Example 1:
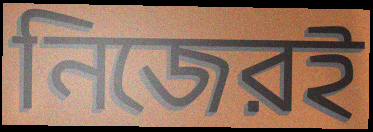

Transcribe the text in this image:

নিজেরই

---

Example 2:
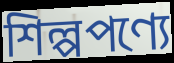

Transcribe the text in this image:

শিল্পপণ্যে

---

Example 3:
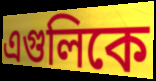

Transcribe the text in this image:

এগুলিকে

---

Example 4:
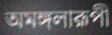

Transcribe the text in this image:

অমঙ্গলারূপী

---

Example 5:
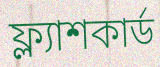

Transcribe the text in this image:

ফ্ল্যাশকার্ড